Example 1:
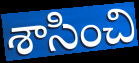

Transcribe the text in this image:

శాసించి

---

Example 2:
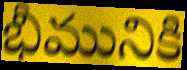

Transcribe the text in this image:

భీమునికి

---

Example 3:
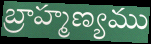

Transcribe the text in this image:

బ్రాహ్మణ్యము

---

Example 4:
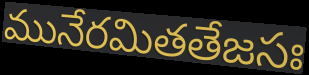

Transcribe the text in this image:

మునేరమితతేజసః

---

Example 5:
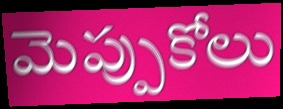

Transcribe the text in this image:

మెప్పుకోలు